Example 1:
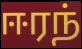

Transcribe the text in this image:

ஈரந்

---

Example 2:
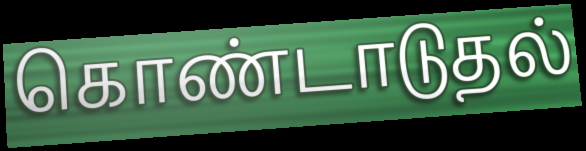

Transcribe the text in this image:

கொண்டாடுதல்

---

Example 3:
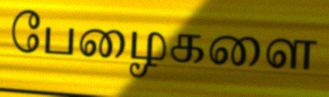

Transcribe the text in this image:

பேழைகளை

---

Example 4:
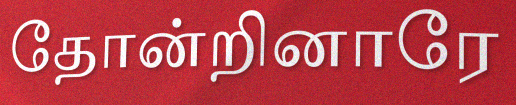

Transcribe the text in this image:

தோன்றினாரே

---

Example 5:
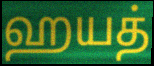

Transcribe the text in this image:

ஹயத்